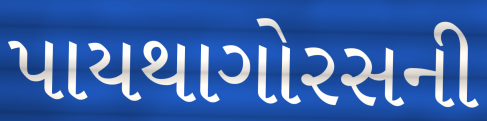
પાયથાગોરસની